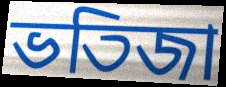
ভতিজা